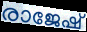
രാജേഷ്